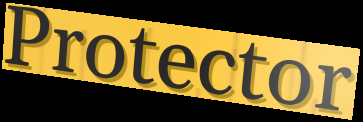
Protector